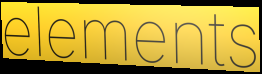
elements